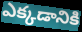
ఎక్కడానికి